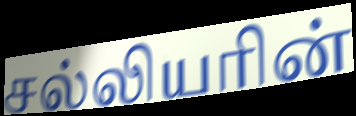
சல்லியரின்